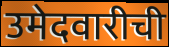
उमेदवारीची